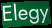
Elegy